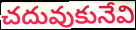
చదువుకునేవి